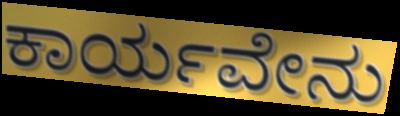
ಕಾರ್ಯವೇನು